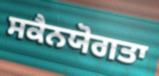
ਸਕੈਨਯੋਗਤਾ